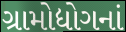
ગ્રામોદ્યોગનાં